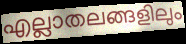
എല്ലാതലങ്ങളിലും